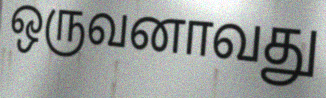
ஒருவனாவது